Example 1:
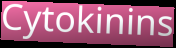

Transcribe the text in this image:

Cytokinins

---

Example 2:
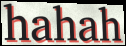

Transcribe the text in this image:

hahah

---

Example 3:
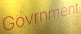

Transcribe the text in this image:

Govrnment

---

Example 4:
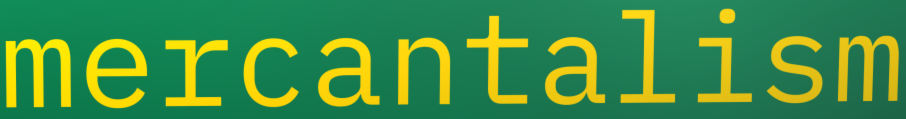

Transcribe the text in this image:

mercantalism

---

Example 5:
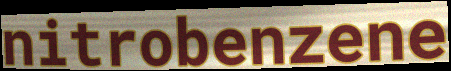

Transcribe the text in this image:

nitrobenzene